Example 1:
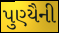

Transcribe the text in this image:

પુણ્યૈની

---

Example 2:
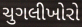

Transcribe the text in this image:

ચુગલીખોરો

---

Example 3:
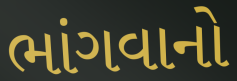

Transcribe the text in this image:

ભાંગવાનો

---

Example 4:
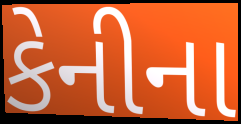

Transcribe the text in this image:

કેનીના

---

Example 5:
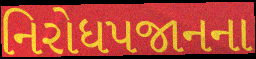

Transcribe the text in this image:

નિરોધપજાનના